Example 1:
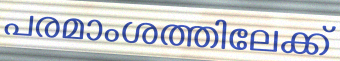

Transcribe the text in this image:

പരമാംശത്തിലേക്ക്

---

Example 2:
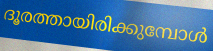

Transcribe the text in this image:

ദൂരത്തായിരിക്കുമ്പോൾ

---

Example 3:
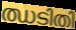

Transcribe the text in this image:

ഝടിതി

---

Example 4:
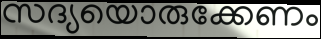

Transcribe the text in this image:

സദ്യയൊരുക്കേണം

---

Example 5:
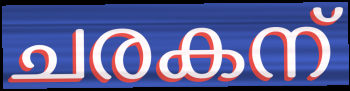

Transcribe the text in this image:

ചരകന്